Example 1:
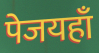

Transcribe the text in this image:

पेजयहाँ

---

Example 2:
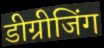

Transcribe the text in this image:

डीग्रीजिंग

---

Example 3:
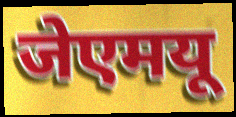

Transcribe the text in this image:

जेएमयू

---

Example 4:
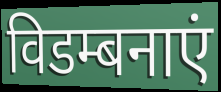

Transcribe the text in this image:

विडम्बनाएं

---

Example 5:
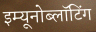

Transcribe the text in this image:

इम्यूनोब्लॉटिंग